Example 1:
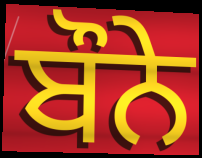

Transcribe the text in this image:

ਬੌਨੇ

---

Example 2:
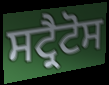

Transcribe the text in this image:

ਸਟ੍ਰੈਟੋਸ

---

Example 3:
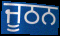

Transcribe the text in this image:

ਜੂਠਨ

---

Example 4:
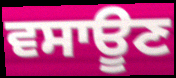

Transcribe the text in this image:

ਵਸਾਊਣ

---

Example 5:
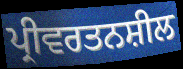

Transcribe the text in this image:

ਪ੍ਰੀਵਰਤਨਸ਼ੀਲ